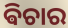
ଵିଚାର